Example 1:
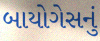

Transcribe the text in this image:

બાયોગેસનું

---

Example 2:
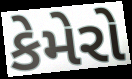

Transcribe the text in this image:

કેમેરો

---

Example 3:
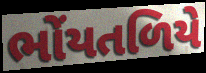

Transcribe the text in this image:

ભોંયતળિયે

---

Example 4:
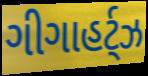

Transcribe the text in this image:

ગીગાહર્ટ્ઝ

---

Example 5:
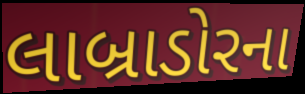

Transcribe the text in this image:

લાબ્રાડોરના